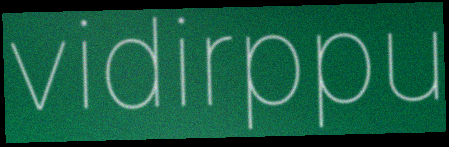
vidirppu